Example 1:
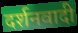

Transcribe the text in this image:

दर्शनवादी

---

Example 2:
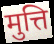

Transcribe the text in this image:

मुत्ति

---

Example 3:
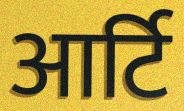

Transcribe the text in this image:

आर्टि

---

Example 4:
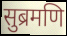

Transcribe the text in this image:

सुब्रमणि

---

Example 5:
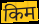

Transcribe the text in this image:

किम